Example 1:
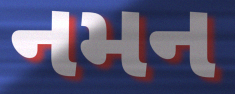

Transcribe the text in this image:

નમન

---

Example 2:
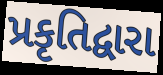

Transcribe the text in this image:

પ્રકૃતિદ્વારા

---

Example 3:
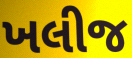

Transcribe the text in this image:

ખલીજ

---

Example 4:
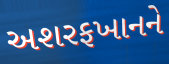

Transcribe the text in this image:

અશરફખાનને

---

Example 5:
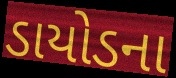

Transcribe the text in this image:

ડાયોડના